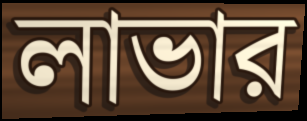
লাভার